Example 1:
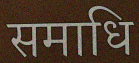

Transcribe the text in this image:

समाधि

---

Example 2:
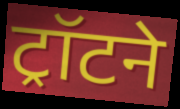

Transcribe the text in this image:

ट्रॉटने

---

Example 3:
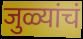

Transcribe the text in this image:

जुळ्यांचं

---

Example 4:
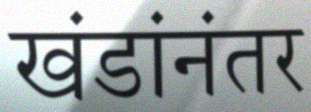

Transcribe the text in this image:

खंडांनंतर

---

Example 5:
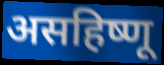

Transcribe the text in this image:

असहिष्णू